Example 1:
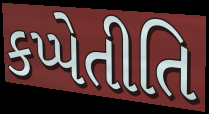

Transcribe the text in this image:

કપ્પેતીતિ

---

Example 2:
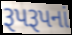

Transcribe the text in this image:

રૂપરૂપનાં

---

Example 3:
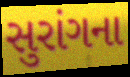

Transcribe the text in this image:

સુરાંગના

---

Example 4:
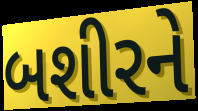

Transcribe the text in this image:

બશીરને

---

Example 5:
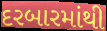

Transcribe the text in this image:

દરબારમાંથી